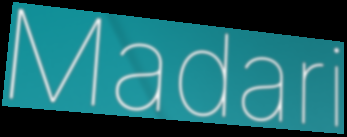
Madari